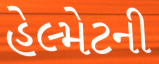
હેલ્મેટની